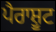
ਪੈਰਾਸ਼ੂਟ